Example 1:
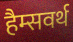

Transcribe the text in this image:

हैम्सवर्थ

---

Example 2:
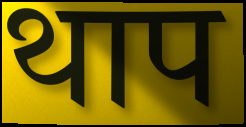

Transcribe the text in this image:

थाप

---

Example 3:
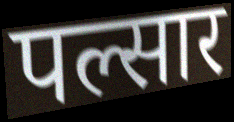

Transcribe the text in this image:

पल्सार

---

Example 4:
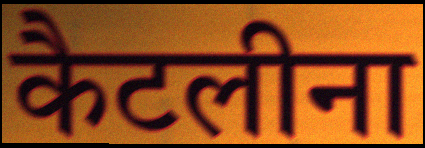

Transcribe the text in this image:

कैटलीना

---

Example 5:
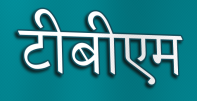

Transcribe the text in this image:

टीबीएम